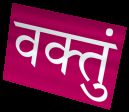
वक्तुं